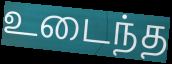
உடைந்த